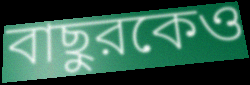
বাছুরকেও